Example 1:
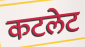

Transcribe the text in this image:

कटलेट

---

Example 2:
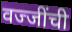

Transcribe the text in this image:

वज्जींची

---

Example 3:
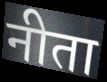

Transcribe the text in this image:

नीता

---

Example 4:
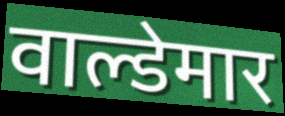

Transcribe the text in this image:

वाल्डेमार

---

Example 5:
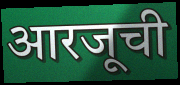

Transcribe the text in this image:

आरजूची